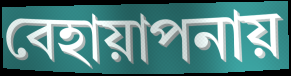
বেহায়াপনায়